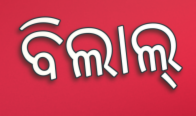
ବିଲାଲ୍